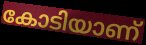
കോടിയാണ്